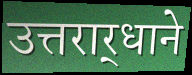
उत्तरार्धाने